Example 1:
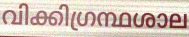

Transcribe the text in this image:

വിക്കിഗ്രന്ഥശാല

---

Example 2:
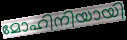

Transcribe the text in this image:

മോഹിനിയായി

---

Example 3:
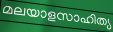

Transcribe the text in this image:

മലയാളസാഹിത്യ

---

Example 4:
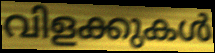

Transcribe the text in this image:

വിളക്കുകൾ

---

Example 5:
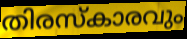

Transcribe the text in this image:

തിരസ്കാരവും